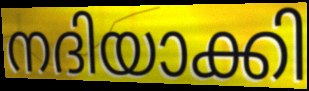
നദിയാക്കി